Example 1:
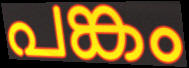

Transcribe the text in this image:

പങ്കം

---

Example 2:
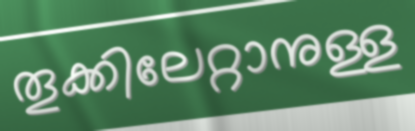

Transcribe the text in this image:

തൂക്കിലേറ്റാനുള്ള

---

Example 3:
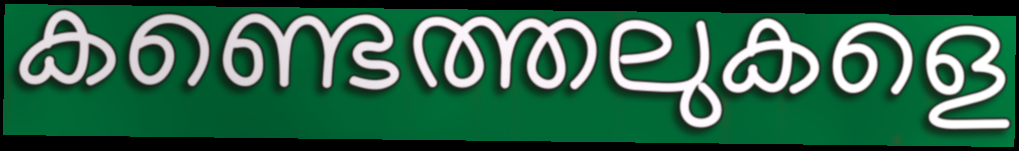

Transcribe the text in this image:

കണ്ടെത്തലുകളെ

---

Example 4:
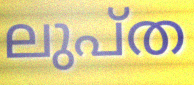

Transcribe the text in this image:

ലുപ്ത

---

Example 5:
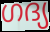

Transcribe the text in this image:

ഗദ്യ